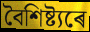
বৈশিষ্ট্যৰে